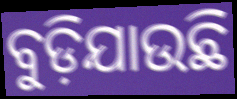
ବୁଡ଼ିଯାଉଛି